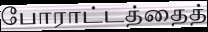
போராட்டத்தைத்